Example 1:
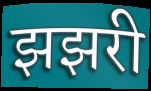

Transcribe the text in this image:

झझरी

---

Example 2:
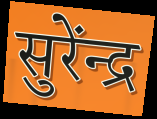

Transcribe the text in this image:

सुरेंन्द्र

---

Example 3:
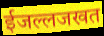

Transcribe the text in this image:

ईजल्लजखत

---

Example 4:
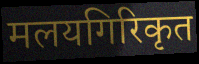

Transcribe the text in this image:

मलयगिरिकृत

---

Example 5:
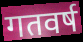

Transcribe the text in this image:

गतवर्ष